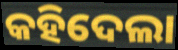
କହିଦେଲା